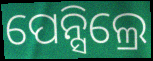
ପେନ୍ସିଲ୍ରେ